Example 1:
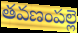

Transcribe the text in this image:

తవణంపల్లె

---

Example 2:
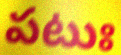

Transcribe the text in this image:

పటుః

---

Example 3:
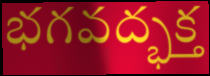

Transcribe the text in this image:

భగవద్భక్త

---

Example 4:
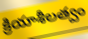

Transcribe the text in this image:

క్రియాశీలత్వం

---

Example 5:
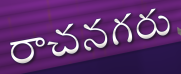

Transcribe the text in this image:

రాచనగరు